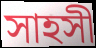
সাহসী